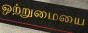
ஒற்றுமையை